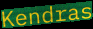
Kendras